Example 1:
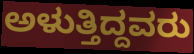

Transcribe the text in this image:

ಅಳುತ್ತಿದ್ದವರು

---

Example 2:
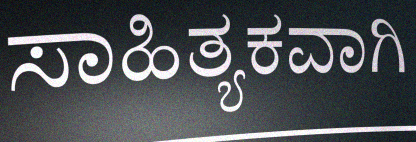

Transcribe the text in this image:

ಸಾಹಿತ್ಯಕವಾಗಿ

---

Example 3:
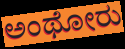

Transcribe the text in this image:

ಅಂಥೋರು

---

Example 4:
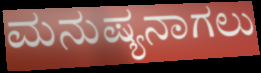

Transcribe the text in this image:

ಮನುಷ್ಯನಾಗಲು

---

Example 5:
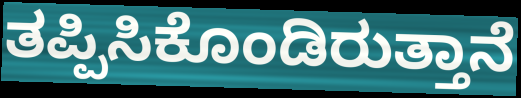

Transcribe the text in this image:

ತಪ್ಪಿಸಿಕೊಂಡಿರುತ್ತಾನೆ